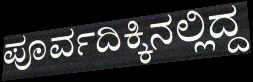
ಪೂರ್ವದಿಕ್ಕಿನಲ್ಲಿದ್ದ